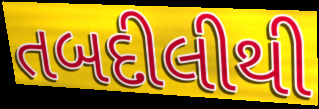
તબદીલીથી